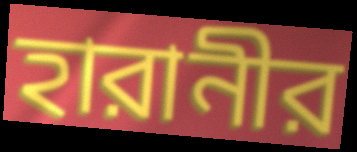
হারানীর